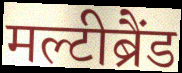
मल्टीब्रैंड